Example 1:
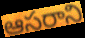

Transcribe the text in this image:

ఆసరాని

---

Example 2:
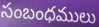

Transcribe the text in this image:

సంబంధములు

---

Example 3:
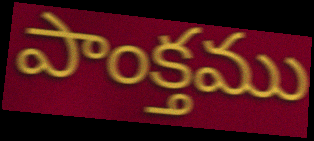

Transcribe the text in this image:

పాంక్తము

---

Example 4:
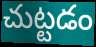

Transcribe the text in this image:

చుట్టడం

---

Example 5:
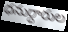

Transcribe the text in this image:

ధనుర్ధారుల